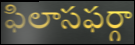
ఫిలాసఫర్గా